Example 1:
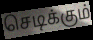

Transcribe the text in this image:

செடிக்கும்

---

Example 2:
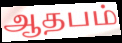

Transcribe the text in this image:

ஆதபம்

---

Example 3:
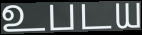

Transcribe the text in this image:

உபடய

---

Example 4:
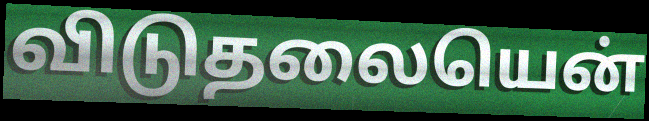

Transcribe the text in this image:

விடுதலையென்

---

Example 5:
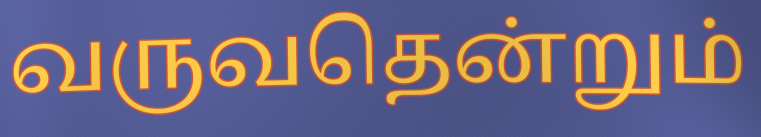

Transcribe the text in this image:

வருவதென்றும்